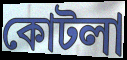
কোটলা